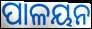
ପାଳୟନ